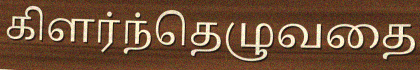
கிளர்ந்தெழுவதை